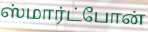
ஸ்மார்ட்போன்